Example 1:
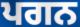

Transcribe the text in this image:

ਪਗਨ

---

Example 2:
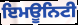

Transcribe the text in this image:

ਇਮਊਨਿਟੀ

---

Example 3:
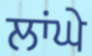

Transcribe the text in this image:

ਲਾਂਘੇ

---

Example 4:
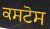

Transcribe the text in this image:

ਕਸਟੋਸ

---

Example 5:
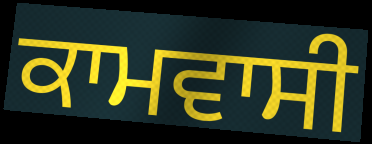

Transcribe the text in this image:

ਕਾਮਵਾਸੀ